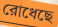
রোধেছে